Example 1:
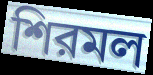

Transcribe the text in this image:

শিরমল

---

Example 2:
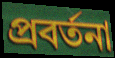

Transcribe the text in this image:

প্রবর্তনা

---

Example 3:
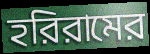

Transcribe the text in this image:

হরিরামের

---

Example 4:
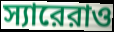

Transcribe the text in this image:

স্যারেরাও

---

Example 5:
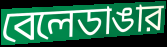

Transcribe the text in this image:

বেলেডাঙার